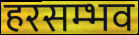
हरसम्भव